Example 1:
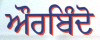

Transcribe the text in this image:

ਔਰਬਿੰਦੋ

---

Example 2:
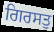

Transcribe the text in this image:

ਗਿਰਸਤੁ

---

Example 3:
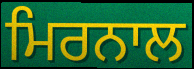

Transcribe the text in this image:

ਮਿਰਨਾਲ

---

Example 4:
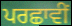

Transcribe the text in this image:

ਪਰਛਾਵੀਂ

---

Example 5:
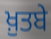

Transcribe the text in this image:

ਖ਼ੁਤਬੇ